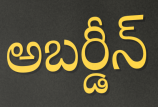
అబర్డీన్